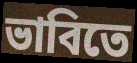
ভাবিতে